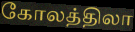
கோலத்திலா